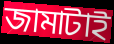
জামাটাই